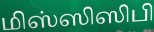
மிஸ்ஸிஸிபி